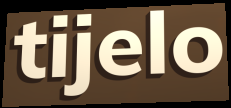
tijelo